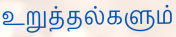
உறுத்தல்களும்